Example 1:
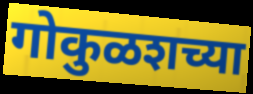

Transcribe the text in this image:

गोकुळशच्या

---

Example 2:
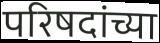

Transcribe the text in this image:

परिषदांच्या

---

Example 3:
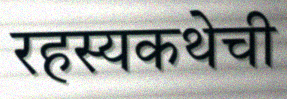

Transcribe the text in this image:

रहस्यकथेची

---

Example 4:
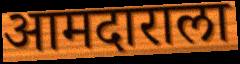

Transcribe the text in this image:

आमदाराला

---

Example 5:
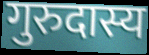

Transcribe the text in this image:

गुरुदास्य